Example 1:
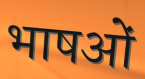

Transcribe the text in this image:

भाषओं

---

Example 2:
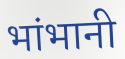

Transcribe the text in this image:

भांभानी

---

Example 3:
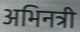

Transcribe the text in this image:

अभिनत्री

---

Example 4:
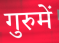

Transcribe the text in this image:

गुरुमें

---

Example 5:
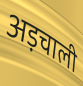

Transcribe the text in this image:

अड़चाली